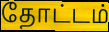
தோட்டம்